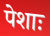
पेशाः